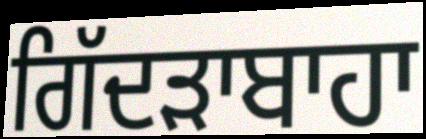
ਗਿੱਦੜਾਬਾਹਾ